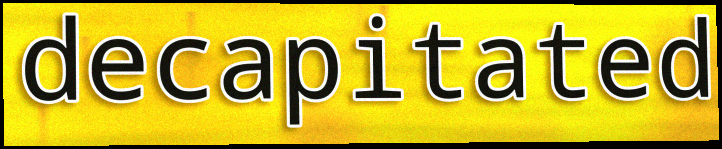
decapitated